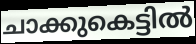
ചാക്കുകെട്ടിൽ